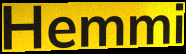
Hemmi